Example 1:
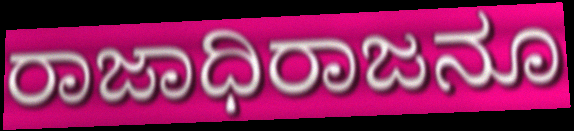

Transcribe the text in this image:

ರಾಜಾಧಿರಾಜನೂ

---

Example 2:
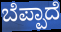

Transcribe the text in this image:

ಬೆಪ್ಪಾದೆ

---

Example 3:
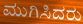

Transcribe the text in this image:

ಮುಗಿಸಿದರು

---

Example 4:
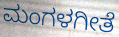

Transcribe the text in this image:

ಮಂಗಳಗೀತೆ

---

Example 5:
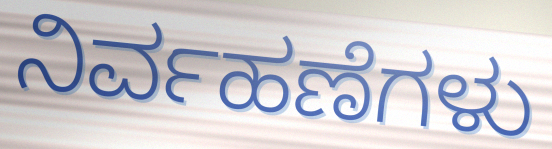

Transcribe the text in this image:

ನಿರ್ವಹಣೆಗಳು